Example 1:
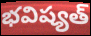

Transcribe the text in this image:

భవిష్యత్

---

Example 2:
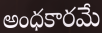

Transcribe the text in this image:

అంధకారమే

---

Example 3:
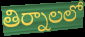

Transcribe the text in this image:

తిర్నాలలో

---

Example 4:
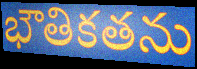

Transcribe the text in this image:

భౌతికతను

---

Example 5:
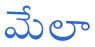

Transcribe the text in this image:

మేలా